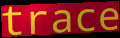
trace